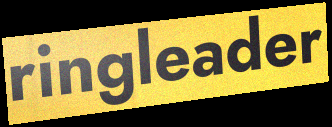
ringleader